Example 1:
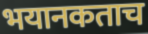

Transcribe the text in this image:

भयानकताच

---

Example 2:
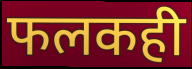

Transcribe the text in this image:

फलकही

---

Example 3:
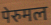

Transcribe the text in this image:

पेरुमल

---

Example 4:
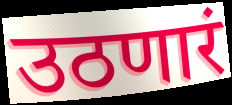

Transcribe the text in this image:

उठणारं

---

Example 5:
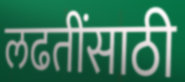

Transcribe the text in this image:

लढतींसाठी